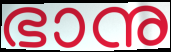
ഭാനു